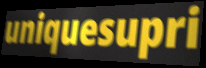
uniquesupri